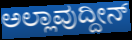
ಅಲ್ಲಾವುದ್ದೀನ್